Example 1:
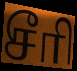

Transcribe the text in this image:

சீரி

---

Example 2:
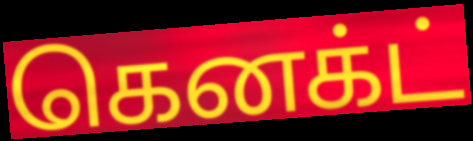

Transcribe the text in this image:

கெனக்ட்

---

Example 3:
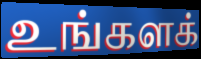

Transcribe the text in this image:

உங்களக்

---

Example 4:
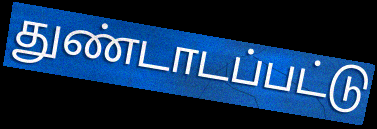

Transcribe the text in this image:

துண்டாடப்பட்டு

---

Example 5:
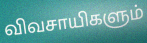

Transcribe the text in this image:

விவசாயிகளும்